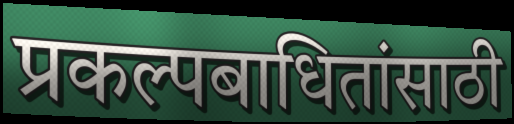
प्रकल्पबाधितांसाठी